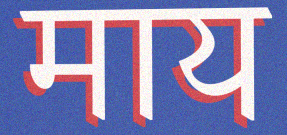
माय